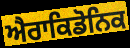
ਐਰਾਕਿਡੋਨਿਕ